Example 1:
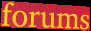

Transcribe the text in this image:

forums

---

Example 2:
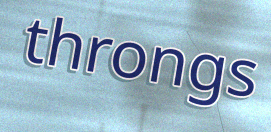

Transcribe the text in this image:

throngs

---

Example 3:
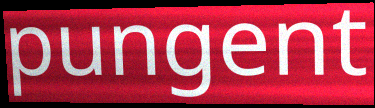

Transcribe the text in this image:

pungent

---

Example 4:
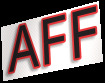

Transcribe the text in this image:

AFF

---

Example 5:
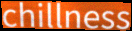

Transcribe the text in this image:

chillness